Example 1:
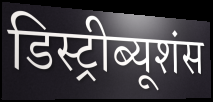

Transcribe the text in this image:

डिस्ट्रीब्यूशंस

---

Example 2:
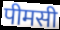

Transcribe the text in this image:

पीमसी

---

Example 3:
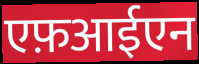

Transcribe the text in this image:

एफ़आईएन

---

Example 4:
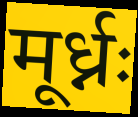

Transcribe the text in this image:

मूर्ध्नः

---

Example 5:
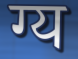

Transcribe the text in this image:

ग्य